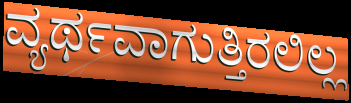
ವ್ಯರ್ಥವಾಗುತ್ತಿರಲಿಲ್ಲ